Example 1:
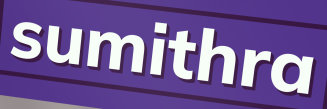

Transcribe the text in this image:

sumithra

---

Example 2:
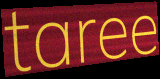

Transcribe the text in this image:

taree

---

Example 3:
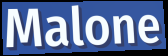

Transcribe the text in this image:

Malone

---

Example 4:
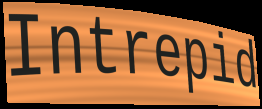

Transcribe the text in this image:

Intrepid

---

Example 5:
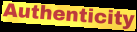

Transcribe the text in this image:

Authenticity